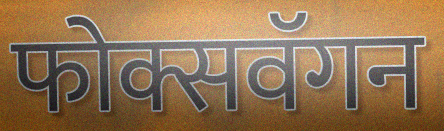
फोक्सवॅगन